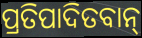
ପ୍ରତିପାଦିତବାନ୍